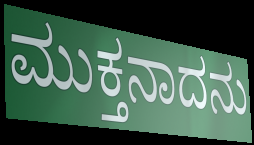
ಮುಕ್ತನಾದನು